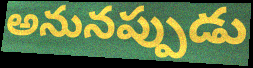
అనునప్పుడు